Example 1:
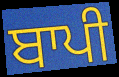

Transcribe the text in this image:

ਬਾਪੀ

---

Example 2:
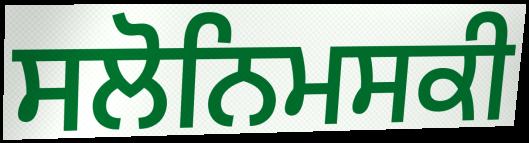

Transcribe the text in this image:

ਸਲੋਨਿਮਸਕੀ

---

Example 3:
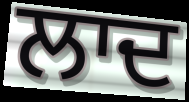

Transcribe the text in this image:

ਲਾਦ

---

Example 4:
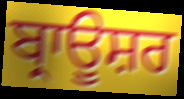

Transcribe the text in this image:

ਬ੍ਰਾਊਸ਼ਰ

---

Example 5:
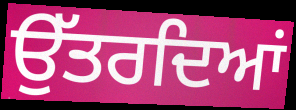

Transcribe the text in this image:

ਉੱਤਰਦਿਆਂ